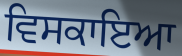
ਵਿਸਕਾਇਆ